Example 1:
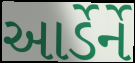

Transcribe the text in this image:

આર્ડેર્ને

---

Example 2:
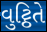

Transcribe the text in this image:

વુટ્ઠિતે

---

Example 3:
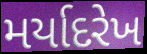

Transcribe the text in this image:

મર્યાદરેખ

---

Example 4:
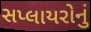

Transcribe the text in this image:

સપ્લાયરોનું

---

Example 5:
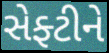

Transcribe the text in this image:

સેફ્ટીને